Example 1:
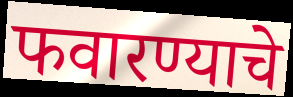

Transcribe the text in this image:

फवारण्याचे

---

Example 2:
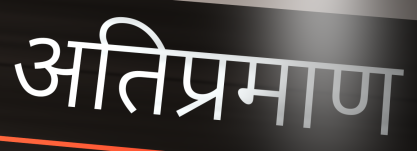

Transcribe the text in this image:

अतिप्रमाण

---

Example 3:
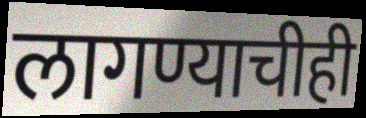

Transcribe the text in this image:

लागण्याचीही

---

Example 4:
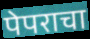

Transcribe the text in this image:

पेपराचा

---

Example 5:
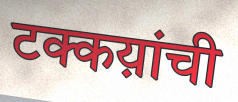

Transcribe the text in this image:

टक्कय़ांची